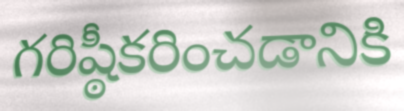
గరిష్ఠీకరించడానికి